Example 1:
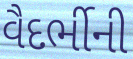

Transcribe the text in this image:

વૈદર્ભીની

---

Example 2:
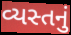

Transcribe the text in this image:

વ્યસ્તનું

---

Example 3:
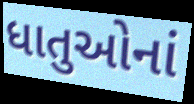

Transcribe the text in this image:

ધાતુઓનાં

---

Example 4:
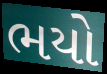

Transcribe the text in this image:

ભયો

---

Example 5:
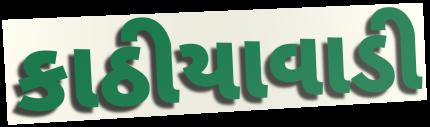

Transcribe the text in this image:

કાઠીયાવાડી